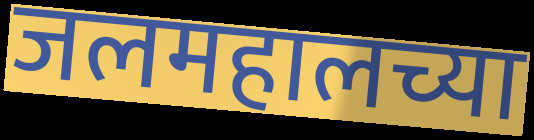
जलमहालच्या